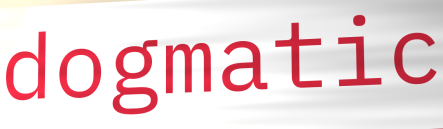
dogmatic